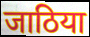
जाठिया